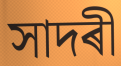
সাদৰী